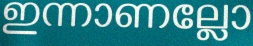
ഇന്നാണല്ലോ